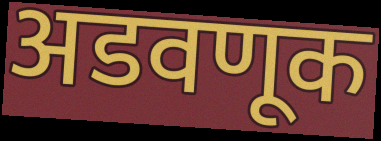
अडवणूक